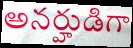
అనర్హుడిగా